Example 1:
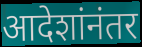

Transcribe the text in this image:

आदेशांनंतर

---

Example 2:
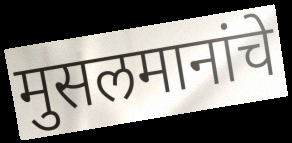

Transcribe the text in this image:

मुसलमानांचे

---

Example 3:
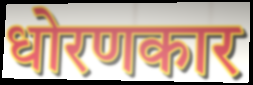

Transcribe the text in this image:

धोरणकार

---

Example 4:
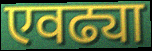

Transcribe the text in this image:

एवढ्या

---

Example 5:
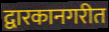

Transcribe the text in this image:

द्वारकानगरीत